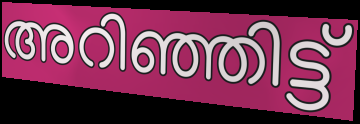
അറിഞ്ഞിട്ട്